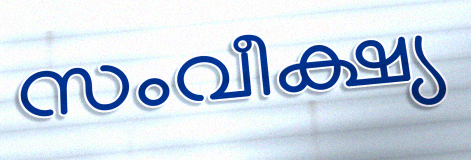
സംവീക്ഷ്യ